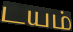
டயம்